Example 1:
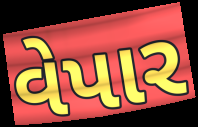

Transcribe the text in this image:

વેપાર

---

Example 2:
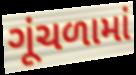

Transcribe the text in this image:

ગૂંચળામાં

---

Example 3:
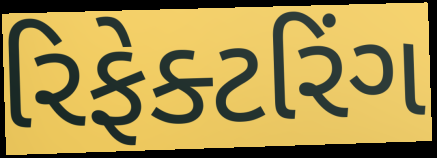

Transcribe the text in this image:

રિફેક્ટરિંગ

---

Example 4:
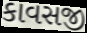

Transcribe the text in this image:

કાવસજી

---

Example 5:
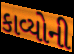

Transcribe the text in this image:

કાવ્યોની